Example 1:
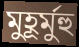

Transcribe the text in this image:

মুহূর্মুহু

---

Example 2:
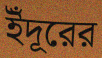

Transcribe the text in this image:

ইঁদূরের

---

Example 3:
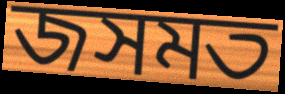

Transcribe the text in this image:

জসমত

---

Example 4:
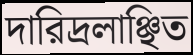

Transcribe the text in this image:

দারিদ্রলাঞ্ছিত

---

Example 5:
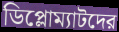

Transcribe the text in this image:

ডিপ্লোম্যাটদের